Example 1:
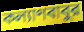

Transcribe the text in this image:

কল্যাণবাবুর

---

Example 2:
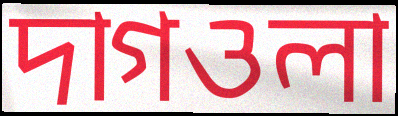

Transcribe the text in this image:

দাগওলা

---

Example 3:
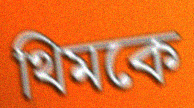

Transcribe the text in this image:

থিমকে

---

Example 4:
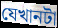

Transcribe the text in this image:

যেখানটা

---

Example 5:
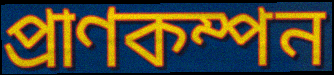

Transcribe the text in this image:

প্রাণকম্পন